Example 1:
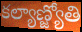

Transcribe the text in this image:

కల్యాణ్జ్యోతి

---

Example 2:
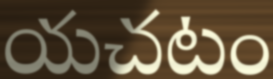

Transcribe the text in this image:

యచటం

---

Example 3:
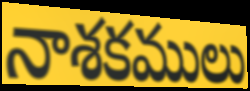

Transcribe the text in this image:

నాశకములు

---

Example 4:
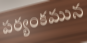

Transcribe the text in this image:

పర్యంకమున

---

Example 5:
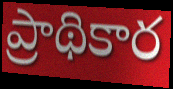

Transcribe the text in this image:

ప్రాథికార